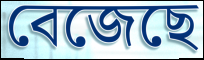
বেজেছে